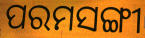
ପରମସଙ୍ଗୀ